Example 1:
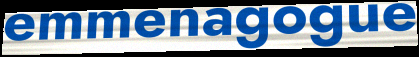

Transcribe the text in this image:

emmenagogue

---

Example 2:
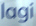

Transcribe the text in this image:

lagi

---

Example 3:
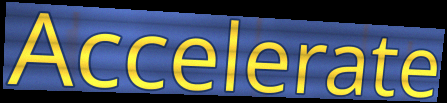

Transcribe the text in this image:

Accelerate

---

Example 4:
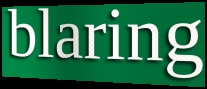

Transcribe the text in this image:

blaring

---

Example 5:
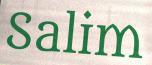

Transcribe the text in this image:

Salim